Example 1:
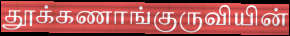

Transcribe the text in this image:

தூக்கணாங்குருவியின்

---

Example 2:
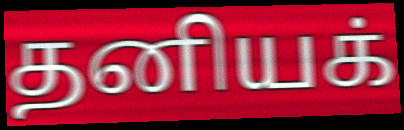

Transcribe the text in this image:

தனியக்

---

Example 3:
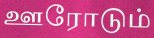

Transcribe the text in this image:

ஊரோடும்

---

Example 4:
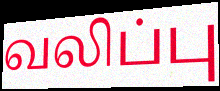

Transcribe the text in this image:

வலிப்பு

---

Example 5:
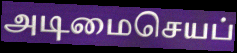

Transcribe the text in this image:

அடிமைசெயப்